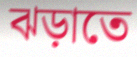
ঝড়াতে